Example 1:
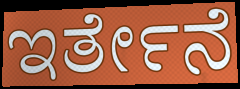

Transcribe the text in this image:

ಇರ್ತೇನೆ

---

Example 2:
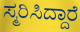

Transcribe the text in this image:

ಸ್ಮರಿಸಿದ್ದಾರೆ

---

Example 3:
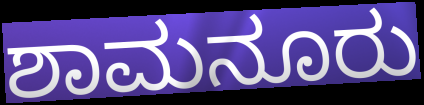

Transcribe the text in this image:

ಶಾಮನೂರು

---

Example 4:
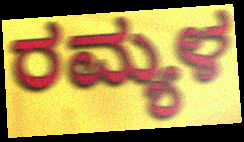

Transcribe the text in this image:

ರಮ್ಯಳ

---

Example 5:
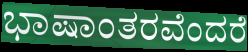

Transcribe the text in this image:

ಭಾಷಾಂತರವೆಂದರೆ